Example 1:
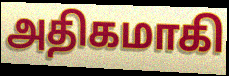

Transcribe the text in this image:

அதிகமாகி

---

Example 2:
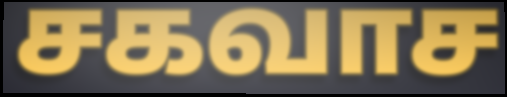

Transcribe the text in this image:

சகவாச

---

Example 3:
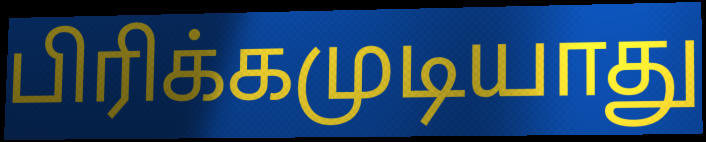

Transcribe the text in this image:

பிரிக்கமுடியாது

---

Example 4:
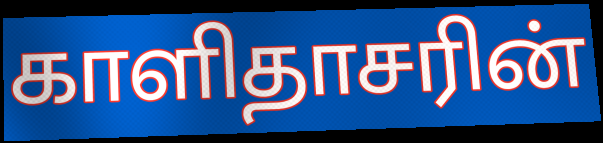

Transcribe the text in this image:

காளிதாசரின்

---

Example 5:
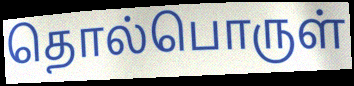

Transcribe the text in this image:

தொல்பொருள்